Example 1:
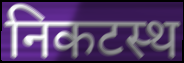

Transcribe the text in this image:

निकटस्थ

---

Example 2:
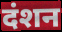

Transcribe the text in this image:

दंशन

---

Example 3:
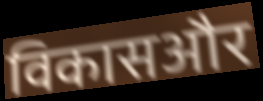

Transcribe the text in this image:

विकासऔर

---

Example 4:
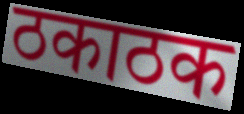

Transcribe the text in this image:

ठकाठक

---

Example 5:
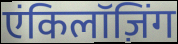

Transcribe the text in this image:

एंकिलॉज़िंग